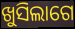
ଖୁସିଲାଗେ